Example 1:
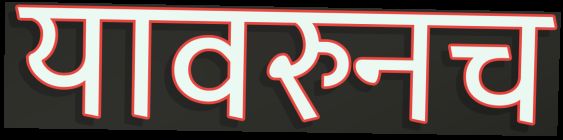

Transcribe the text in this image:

यावरुनच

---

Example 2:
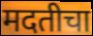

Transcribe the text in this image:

मदतीचा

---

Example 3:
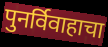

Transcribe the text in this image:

पुनर्विवाहाचा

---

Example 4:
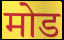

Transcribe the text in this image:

मोड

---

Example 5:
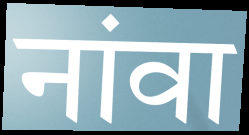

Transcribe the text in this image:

नांवा